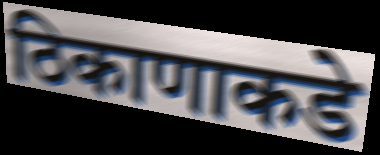
ठिकाणाकडे